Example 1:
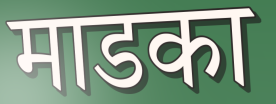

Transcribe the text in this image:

माडका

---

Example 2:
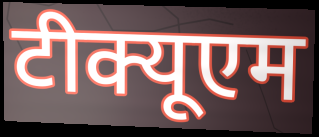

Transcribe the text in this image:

टीक्यूएम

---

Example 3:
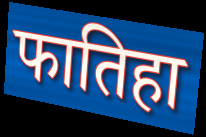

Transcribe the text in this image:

फातिहा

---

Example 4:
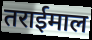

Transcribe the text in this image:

तराईमाल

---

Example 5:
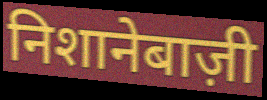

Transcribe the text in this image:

निशानेबाज़ी